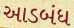
આડબંધ